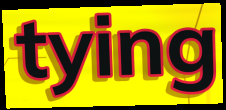
tying